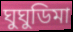
ঘুঘুডিমা